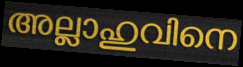
അല്ലാഹുവിനെ